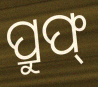
ପ୍ରୁଫ୍